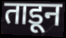
ताडून